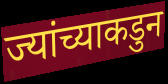
ज्यांच्याकडुन